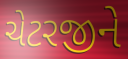
ચેટરજીને